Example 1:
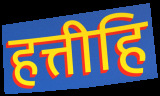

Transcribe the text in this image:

हत्तीहि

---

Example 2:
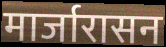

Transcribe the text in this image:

मार्जारासन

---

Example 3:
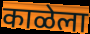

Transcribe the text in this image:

काळेला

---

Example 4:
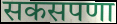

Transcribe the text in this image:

सकसपणा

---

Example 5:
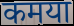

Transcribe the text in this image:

कमया